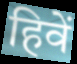
हिवें